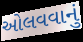
ઓલવવાનું